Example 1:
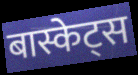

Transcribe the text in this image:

बास्केट्स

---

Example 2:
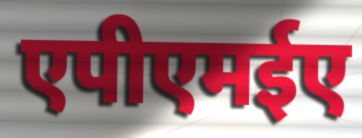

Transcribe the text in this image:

एपीएमईए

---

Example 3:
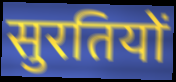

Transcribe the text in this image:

सुरतियों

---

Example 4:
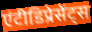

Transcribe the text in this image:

एंटीडिप्रेसेंट्स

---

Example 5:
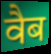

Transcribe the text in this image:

वैब